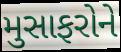
મુસાફરોને